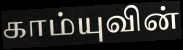
காம்யுவின்